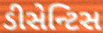
ડીસેન્ટિસ